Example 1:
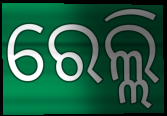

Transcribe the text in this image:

ରେଲ୍ଲି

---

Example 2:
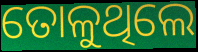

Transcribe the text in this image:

ତୋଳୁଥିଲେ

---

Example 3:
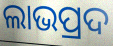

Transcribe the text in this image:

ଲାଭପ୍ରଦ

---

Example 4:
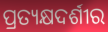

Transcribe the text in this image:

ପ୍ରତ୍ୟକ୍ଷଦର୍ଶୀର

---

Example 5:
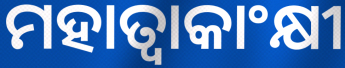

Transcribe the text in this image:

ମହାତ୍ୱାକାଂକ୍ଷୀ